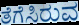
ತೆಗೆಸಿರುವ